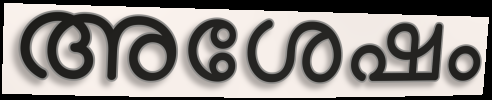
അശേഷം